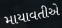
માયાવતીએ